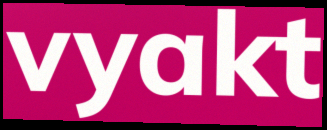
vyakt